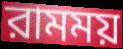
রামময়